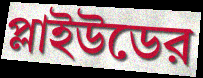
প্লাইউডের